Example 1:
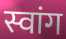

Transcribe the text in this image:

स्‍वांग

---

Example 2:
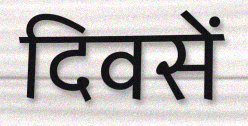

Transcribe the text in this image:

दिवसें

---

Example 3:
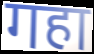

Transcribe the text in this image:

गहा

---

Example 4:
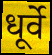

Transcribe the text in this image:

धूर्वे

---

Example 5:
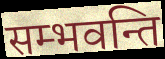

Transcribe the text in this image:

सम्भवन्ति